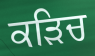
ਕੜਿਚ